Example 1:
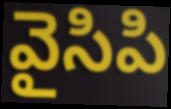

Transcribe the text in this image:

వైసిపి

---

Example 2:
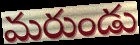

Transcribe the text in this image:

మరుండు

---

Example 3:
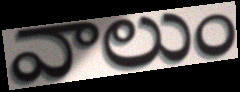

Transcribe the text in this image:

వాలుం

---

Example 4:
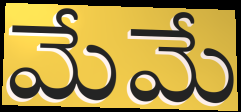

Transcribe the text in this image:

మేమే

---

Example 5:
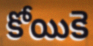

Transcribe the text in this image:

కోయికె